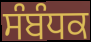
ਸੰਬੰਧਕ